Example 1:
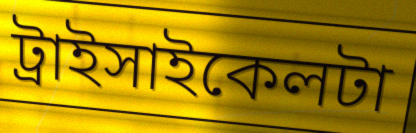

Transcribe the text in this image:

ট্রাইসাইকেলটা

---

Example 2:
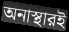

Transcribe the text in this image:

অনাস্থারই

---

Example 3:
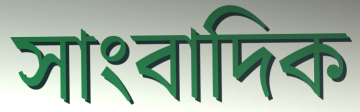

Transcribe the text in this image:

সাংবাদিক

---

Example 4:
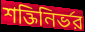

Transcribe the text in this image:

শক্তিনির্ভর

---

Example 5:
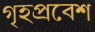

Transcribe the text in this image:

গৃহপ্রবেশ